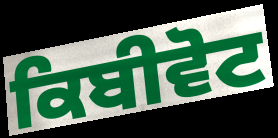
ਕਿਬੀਵੋਟ